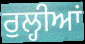
ਰੁਲ੍ਹੀਆਂ